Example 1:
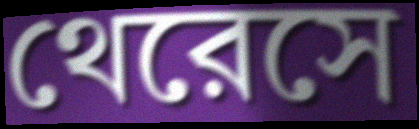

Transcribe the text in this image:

থেরেসে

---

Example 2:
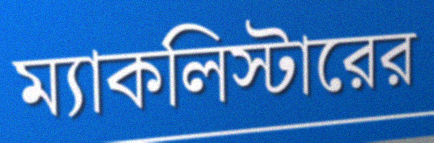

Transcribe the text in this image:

ম্যাকলিস্টারের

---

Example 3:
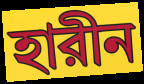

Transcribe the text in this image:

হারীন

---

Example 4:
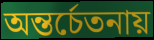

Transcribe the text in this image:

অন্তর্চেতনায়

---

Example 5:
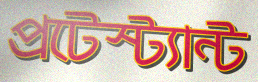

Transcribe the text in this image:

প্রটেস্ট্যান্ট